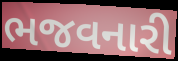
ભજવનારી